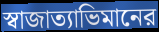
স্বাজাত্যাভিমানের